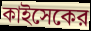
কাইসেকের